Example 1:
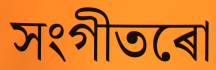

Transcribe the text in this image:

সংগীতৰো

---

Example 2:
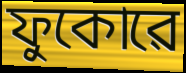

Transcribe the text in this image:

ফুকোৱে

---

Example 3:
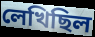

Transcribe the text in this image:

লেখিছিল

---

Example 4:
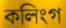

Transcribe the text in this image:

কলিংগ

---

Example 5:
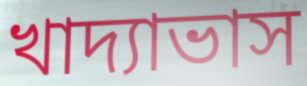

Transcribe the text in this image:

খাদ্যাভাস